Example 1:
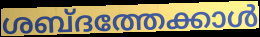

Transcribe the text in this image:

ശബ്ദത്തേക്കാൾ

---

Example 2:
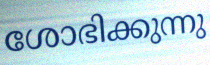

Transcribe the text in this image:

ശോഭിക്കുന്നു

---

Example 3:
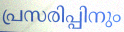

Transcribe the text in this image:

പ്രസരിപ്പിനും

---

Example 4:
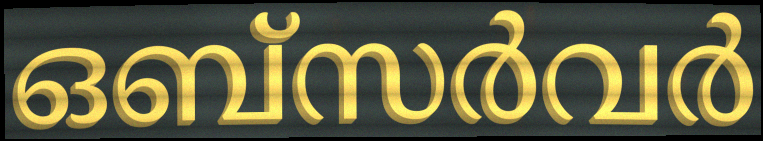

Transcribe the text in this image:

ഒബ്സർവർ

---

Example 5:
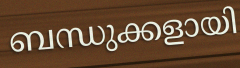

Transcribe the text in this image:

ബന്ധുക്കളായി